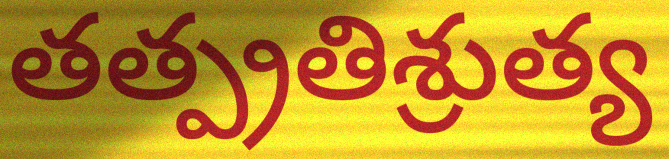
తత్ప్రతిశ్రుత్య